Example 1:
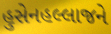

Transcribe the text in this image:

હુસેનહલ્લાજને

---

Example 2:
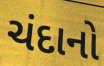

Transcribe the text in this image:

ચંદાનો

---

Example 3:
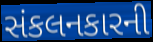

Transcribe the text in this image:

સંકલનકારની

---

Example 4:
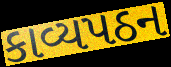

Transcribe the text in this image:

કાવ્યપઠન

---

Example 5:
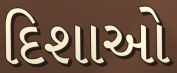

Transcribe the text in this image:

દિશાઓ